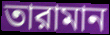
তারামান